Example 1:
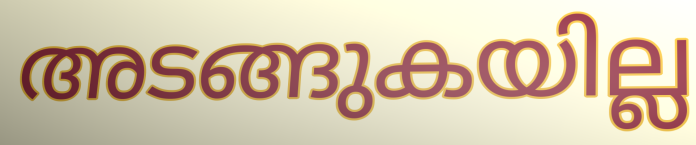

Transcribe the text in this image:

അടങ്ങുകയില്ല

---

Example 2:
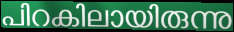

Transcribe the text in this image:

പിറകിലായിരുന്നു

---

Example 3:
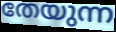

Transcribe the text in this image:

തേയുന്ന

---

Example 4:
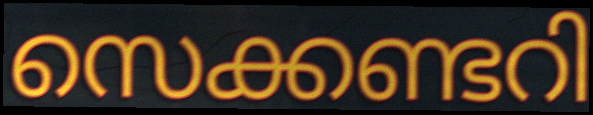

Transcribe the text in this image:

സെക്കണ്ടറി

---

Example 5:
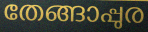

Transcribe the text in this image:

തേങ്ങാപ്പുര